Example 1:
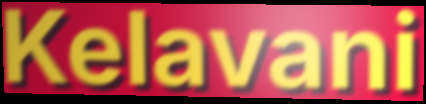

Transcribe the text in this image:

Kelavani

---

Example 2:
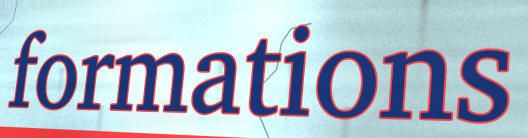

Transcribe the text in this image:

formations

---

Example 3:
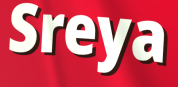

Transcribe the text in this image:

Sreya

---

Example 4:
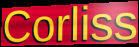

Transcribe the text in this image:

Corliss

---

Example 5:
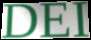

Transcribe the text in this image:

DEI